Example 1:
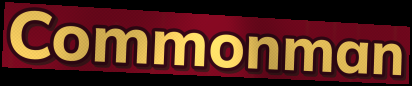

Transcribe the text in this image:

Commonman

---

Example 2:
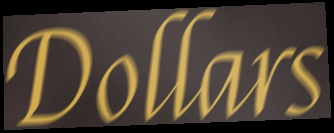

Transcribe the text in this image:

Dollars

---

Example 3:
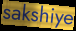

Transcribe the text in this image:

sakshiye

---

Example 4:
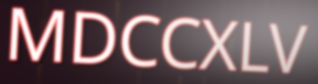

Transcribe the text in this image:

MDCCXLV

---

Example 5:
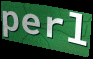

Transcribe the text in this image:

perl